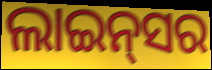
ଲାଇନ୍‍ସର